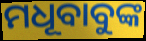
ମଧୂବାବୁଙ୍କ